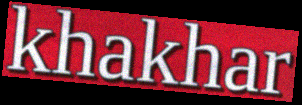
khakhar